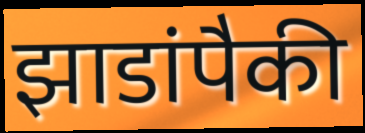
झाडांपैकी